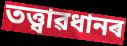
তত্ত্বাৱধানৰ